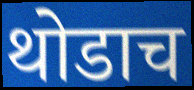
थोडाच